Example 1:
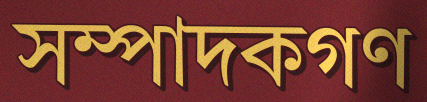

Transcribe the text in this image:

সম্পাদকগণ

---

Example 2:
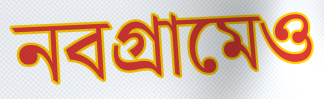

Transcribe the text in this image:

নবগ্রামেও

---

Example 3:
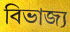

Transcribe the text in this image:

বিভাজ্য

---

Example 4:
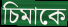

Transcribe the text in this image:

চিমাকে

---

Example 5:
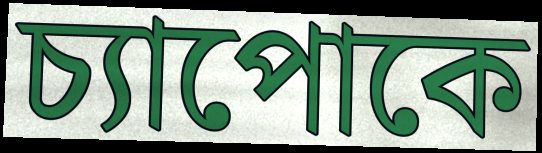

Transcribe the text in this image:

চ্যাপোকে